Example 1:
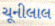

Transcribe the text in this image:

ચૂનીલાલ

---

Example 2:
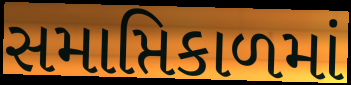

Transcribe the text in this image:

સમાપ્તિકાળમાં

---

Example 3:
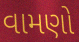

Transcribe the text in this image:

વામણો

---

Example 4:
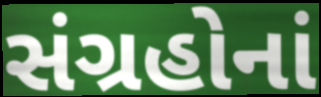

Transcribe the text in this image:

સંગ્રહોનાં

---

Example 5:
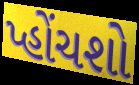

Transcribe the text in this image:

પ્હોંચશો